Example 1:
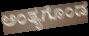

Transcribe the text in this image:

ಅಂತ್ಯಗೊಂಡ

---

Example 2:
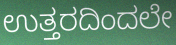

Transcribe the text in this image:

ಉತ್ತರದಿಂದಲೇ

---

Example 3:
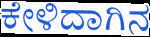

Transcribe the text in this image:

ಕೇಳಿದಾಗಿನ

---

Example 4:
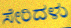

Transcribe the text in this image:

ಸೇರಿದಳು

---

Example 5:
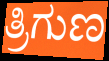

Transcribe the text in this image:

ತ್ರಿಗುಣ